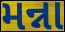
મન્ના